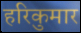
हरिकुमार